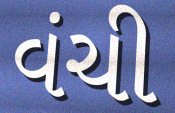
વંચી